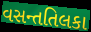
વસન્તતિલકા